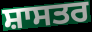
ਸ਼ਾਸਤਰ